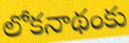
లోకనాథంకు